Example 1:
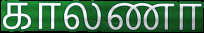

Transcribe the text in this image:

காலணா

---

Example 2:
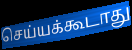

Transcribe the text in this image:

செய்யக்கூடாது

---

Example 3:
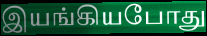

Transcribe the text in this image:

இயங்கியபோது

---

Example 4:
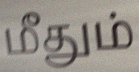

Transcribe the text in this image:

மீதும்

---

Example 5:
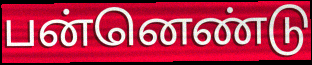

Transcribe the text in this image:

பன்னெண்டு